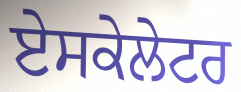
ਏਸਕੇਲੇਟਰ